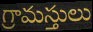
గ్రామస్తులు